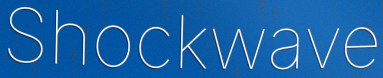
Shockwave